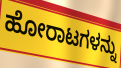
ಹೋರಾಟಗಳನ್ನು